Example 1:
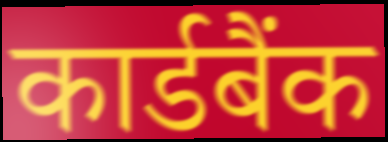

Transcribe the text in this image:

कार्डबैंक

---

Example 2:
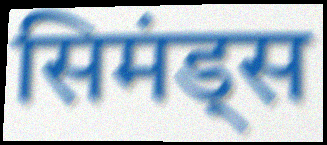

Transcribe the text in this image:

सिमंड्स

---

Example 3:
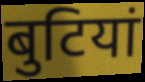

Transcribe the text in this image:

बुटियां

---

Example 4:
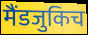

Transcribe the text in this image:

मैंडजुकिच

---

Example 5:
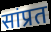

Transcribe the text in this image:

सांप्रत